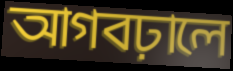
আগবঢ়ালে